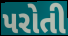
પરોતી